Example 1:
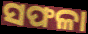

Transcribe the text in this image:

ସଫଳା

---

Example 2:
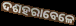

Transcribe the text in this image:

ଦଶହରାବେଳେ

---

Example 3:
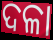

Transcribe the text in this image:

ଦଳା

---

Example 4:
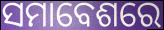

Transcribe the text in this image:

ସମାବେଶରେ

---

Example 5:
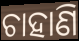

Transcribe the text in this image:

ଚାହାଣି